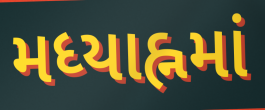
મધ્યાહ્નમાં